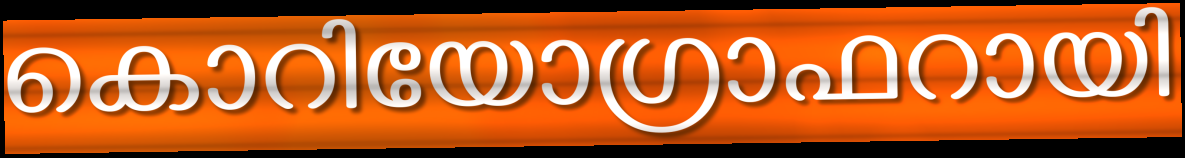
കൊറിയോഗ്രാഫറായി